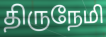
திருநேமி